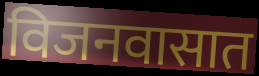
विजनवासात